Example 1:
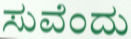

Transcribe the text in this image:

ಸುವೆಂದು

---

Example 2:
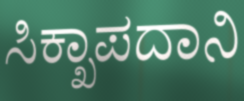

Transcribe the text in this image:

ಸಿಕ್ಖಾಪದಾನಿ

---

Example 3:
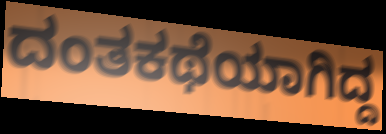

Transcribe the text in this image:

ದಂತಕಥೆಯಾಗಿದ್ದ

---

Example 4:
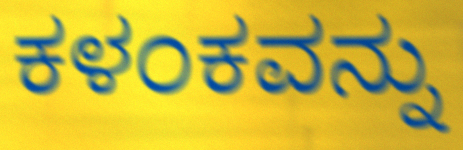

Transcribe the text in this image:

ಕಳಂಕವನ್ನು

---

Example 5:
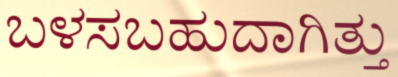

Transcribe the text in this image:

ಬಳಸಬಹುದಾಗಿತ್ತು